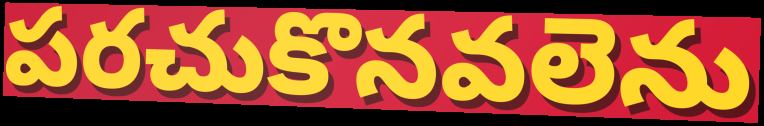
పరచుకొనవలెను